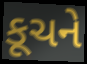
કૂચને